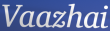
Vaazhai